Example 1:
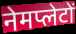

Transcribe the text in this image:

नेमप्लेटों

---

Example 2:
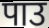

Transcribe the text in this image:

पाउ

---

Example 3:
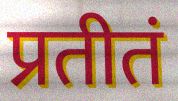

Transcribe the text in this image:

प्रतीतं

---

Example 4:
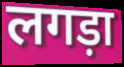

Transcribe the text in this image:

लगड़ा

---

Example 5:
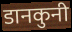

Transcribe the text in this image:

डानकुनी